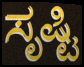
ಸೃಷ್ಟಿ